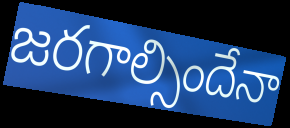
జరగాల్సిందేనా